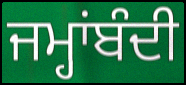
ਜਮ੍ਹਾਂਬੰਦੀ